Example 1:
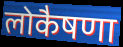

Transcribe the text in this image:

लोकैषणा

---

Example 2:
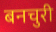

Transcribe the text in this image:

बनचुरी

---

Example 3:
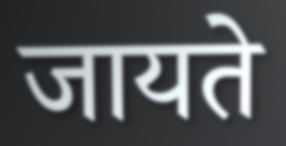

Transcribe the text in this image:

जायते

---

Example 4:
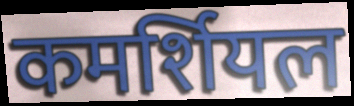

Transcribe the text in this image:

कमर्शियल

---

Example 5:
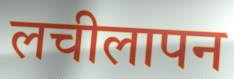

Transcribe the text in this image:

लचीलापन